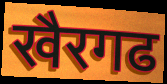
खैरगढ